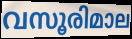
വസൂരിമാല